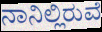
ನಾನಿಲ್ಲಿರುವೆ